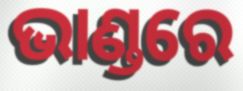
ଭାଣ୍ଡରେ